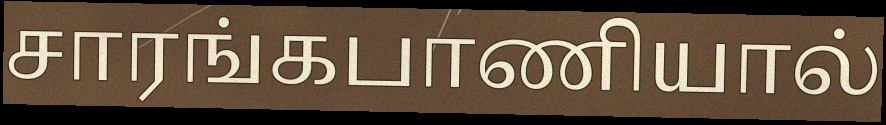
சாரங்கபாணியால்